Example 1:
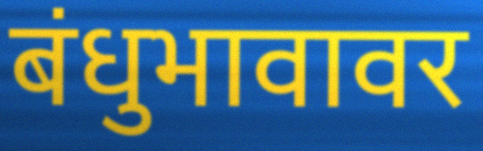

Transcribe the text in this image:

बंधुभावावर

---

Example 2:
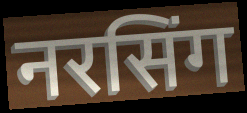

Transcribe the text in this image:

नरसिंग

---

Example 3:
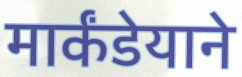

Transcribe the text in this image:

मार्कंडेयाने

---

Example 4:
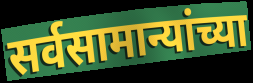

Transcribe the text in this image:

सर्वसामान्यांच्या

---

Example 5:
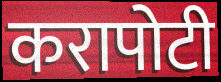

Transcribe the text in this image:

करापोटी